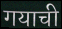
गयाची